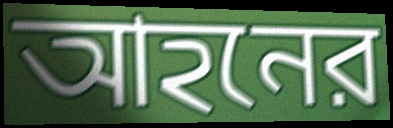
আহনের